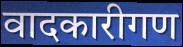
वादकारीगण